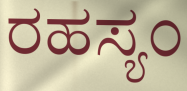
ರಹಸ್ಯಂ